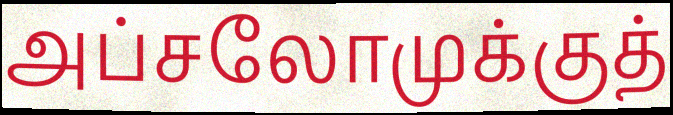
அப்சலோமுக்குத்